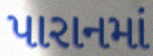
પારાનમાં